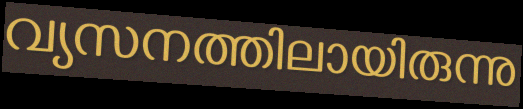
വ്യസനത്തിലായിരുന്നു